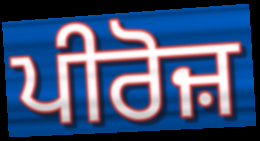
ਪੀਰੋਜ਼